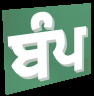
ਬੰਪ